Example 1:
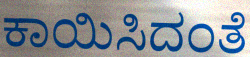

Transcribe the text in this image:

ಕಾಯಿಸಿದಂತೆ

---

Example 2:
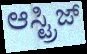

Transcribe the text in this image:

ಆಸ್ಟ್ರಿಜ್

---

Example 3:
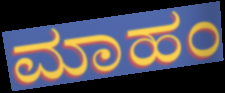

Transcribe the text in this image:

ಮಾಹಂ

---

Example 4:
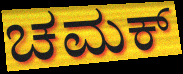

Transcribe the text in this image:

ಚಮಕ್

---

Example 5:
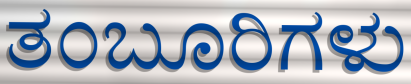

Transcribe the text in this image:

ತಂಬೂರಿಗಳು